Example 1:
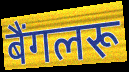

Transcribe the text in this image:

बैंगलरू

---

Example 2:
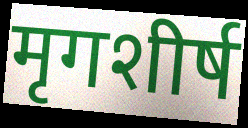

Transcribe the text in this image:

मृगशीर्ष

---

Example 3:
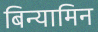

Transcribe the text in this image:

बिन्यामिन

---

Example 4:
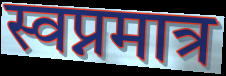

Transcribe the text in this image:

स्वप्नमात्र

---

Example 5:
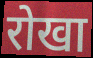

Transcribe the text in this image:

रोखा